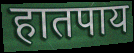
हातपाय